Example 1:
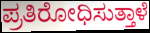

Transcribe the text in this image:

ಪ್ರತಿರೋಧಿಸುತ್ತಾಳೆ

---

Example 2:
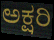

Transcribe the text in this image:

ಅಕ್ಷರಿ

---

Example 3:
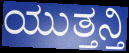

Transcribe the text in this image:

ಯುತ್ತನ್ತಿ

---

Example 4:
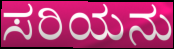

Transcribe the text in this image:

ಸರಿಯನು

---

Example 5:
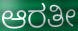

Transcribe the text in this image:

ಆರತೀ